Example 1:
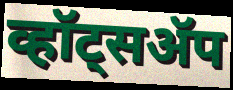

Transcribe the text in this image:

व्हॉट्सॲप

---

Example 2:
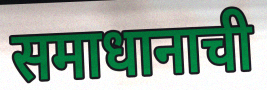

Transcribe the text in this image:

समाधानाची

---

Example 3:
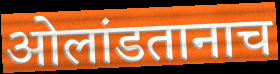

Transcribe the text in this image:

ओलांडतानाच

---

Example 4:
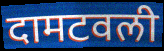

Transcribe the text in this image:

दामटवली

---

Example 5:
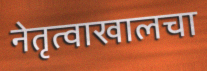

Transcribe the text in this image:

नेतृत्वाखालचा